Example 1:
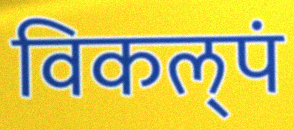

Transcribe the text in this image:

विकल्पं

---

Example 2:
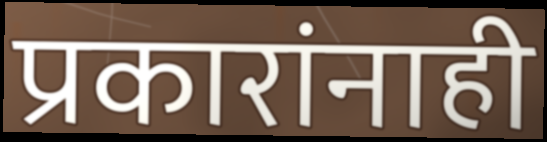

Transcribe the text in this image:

प्रकारांनाही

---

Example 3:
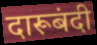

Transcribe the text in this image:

दारूबंदी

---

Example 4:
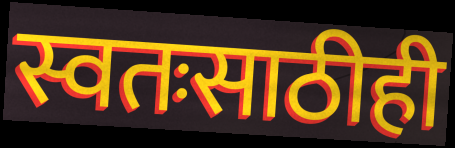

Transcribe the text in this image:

स्वतःसाठीही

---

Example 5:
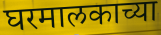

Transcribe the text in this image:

घरमालकाच्या